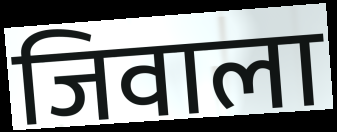
जिवाला